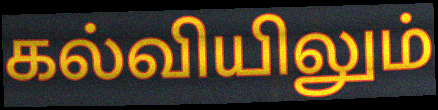
கல்வியிலும்